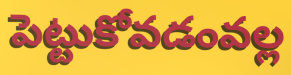
పెట్టుకోవడంవల్ల